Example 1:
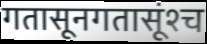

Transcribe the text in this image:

गतासूनगतासूंश्च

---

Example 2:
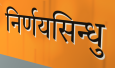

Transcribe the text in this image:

निर्णयसिन्धु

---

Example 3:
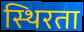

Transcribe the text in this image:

स्थिरता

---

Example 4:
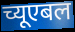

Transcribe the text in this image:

च्यूएबल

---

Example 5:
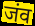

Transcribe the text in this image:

जंव